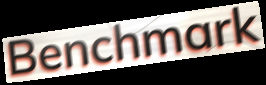
Benchmark